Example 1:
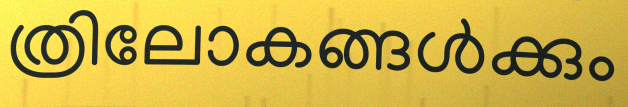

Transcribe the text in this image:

ത്രിലോകങ്ങൾക്കും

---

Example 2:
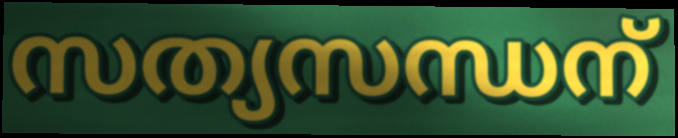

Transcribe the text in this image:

സത്യസന്ധന്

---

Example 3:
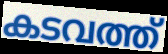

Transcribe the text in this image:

കടവത്ത്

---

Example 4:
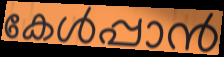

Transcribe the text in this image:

കേൾപ്പാൻ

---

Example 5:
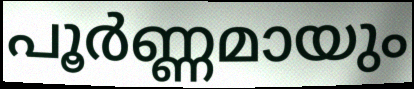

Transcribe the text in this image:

പൂർണ്ണമായും